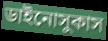
ডাইনোসুকাস